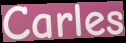
Carles